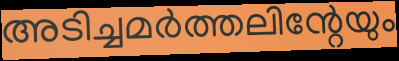
അടിച്ചമർത്തലിന്റേയും